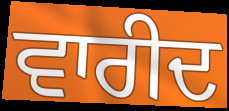
ਵਾਰੀਦ